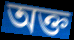
অক্ত